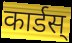
कार्डस्